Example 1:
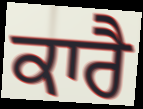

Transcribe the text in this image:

ਕਾਰੈ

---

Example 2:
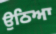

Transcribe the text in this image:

ਉਠਿਆ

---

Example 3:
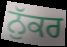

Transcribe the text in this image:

ਨੁੱਕਰ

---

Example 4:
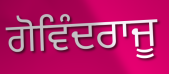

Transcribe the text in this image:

ਗੋਵਿੰਦਰਾਜੂ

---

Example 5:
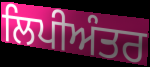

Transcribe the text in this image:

ਲਿਪੀਅੰਤਰ